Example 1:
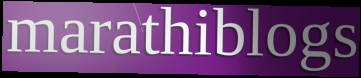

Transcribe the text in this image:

marathiblogs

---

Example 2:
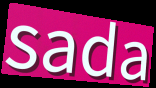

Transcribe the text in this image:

sada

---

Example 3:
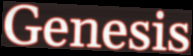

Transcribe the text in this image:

Genesis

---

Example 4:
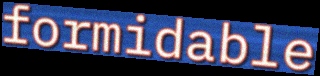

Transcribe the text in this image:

formidable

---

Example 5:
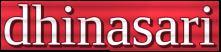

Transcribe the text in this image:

dhinasari